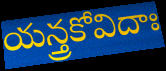
యన్త్రకోవిదాః